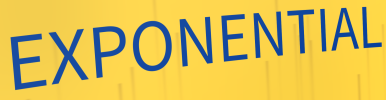
EXPONENTIAL